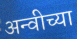
अन्वीच्या